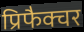
प्रिफैक्चर